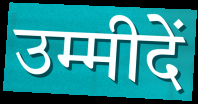
उम्‍मीदें